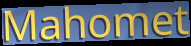
Mahomet